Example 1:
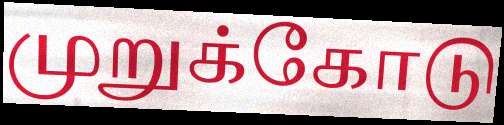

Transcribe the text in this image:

முறுக்கோடு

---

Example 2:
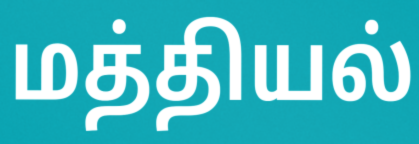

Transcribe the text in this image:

மத்தியல்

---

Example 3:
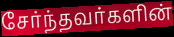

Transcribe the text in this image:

சேர்ந்தவர்களின்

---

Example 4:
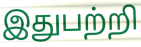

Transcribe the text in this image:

இதுபற்றி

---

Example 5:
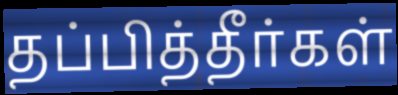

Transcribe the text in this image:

தப்பித்தீர்கள்